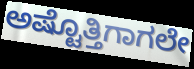
ಅಷ್ಟೊತ್ತಿಗಾಗಲೇ